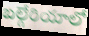
బల్గేరియాలో